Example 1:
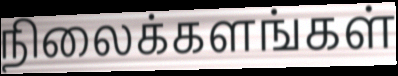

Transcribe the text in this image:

நிலைக்களங்கள்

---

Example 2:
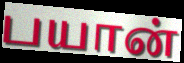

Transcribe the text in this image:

பயான்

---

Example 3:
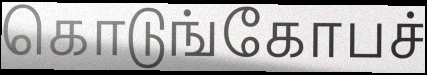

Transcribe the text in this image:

கொடுங்கோபச்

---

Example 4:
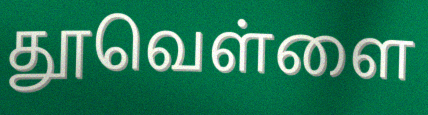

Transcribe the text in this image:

தூவெள்ளை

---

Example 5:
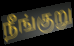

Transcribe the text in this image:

நீங்குறு